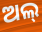
ଅଲ୍